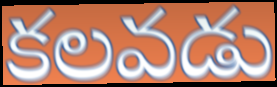
కలవడు